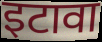
इटावा